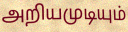
அறியமுடியும்